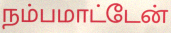
நம்பமாட்டேன்